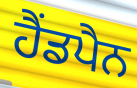
ਹੈਂਡਪੈਨ